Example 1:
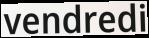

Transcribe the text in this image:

vendredi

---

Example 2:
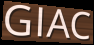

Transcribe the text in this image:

GIAC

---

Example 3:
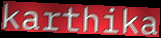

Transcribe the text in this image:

karthika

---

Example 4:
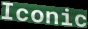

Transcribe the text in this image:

Iconic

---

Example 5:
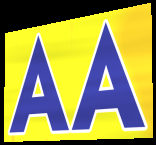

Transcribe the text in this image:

AA